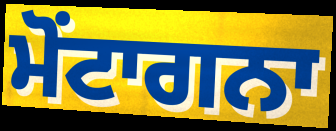
ਮੋਂਟਾਗਨਾ